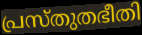
പ്രസ്തുതഭീതി